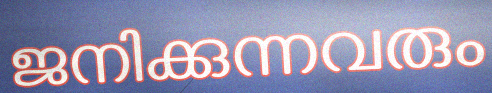
ജനിക്കുന്നവരും